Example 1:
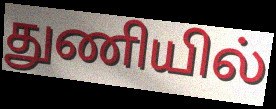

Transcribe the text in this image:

துணியில்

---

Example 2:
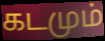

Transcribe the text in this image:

கடமும்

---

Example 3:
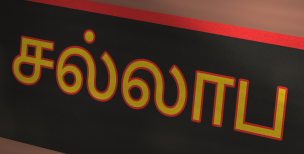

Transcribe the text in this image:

சல்லாப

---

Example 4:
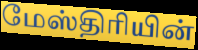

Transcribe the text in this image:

மேஸ்திரியின்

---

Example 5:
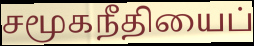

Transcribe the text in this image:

சமூகநீதியைப்